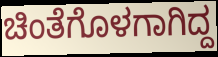
ಚಿಂತೆಗೊಳಗಾಗಿದ್ದ